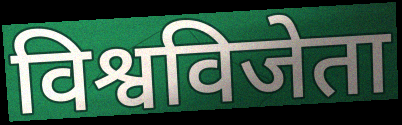
विश्वविजेता